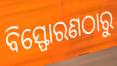
ବିସ୍ଫୋରଣଠାରୁ